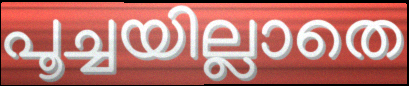
പൂച്ചയില്ലാതെ